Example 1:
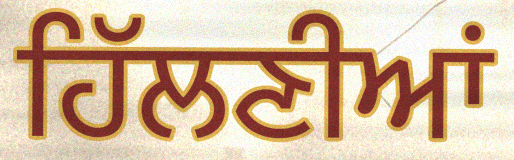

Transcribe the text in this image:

ਹਿੱਲਣੀਆਂ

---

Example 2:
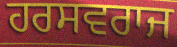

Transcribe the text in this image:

ਹਰਸਵਰਾਜ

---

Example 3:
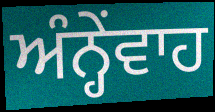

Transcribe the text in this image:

ਅੰਨ੍ਹੇਂਵਾਹ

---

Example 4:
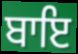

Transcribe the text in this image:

ਬਾਇ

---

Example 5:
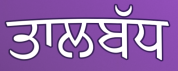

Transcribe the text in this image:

ਤਾਲਬੱਧ